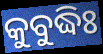
କୁବୁଦ୍ଧିଃ